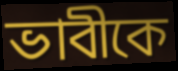
ভাবীকে